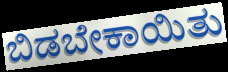
ಬಿಡಬೇಕಾಯಿತು